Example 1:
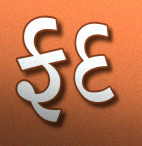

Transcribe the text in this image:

ફદ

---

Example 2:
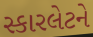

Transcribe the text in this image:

સ્કારલેટને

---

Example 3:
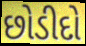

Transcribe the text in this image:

છોડીદો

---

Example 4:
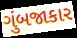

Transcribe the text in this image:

ગુંબજાકાર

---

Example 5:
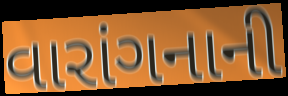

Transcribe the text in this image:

વારાંગનાની